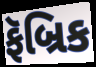
ફૅબ્રિક